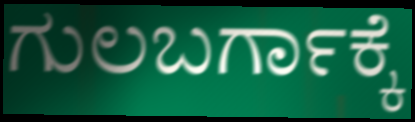
ಗುಲಬರ್ಗಾಕ್ಕೆ